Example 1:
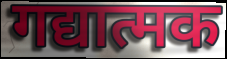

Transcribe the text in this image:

गद्यात्मक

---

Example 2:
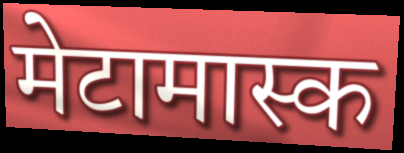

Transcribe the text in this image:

मेटामास्क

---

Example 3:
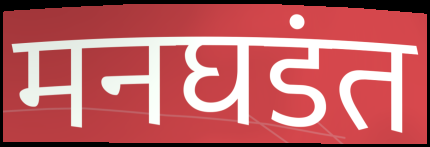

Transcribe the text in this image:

मनघडंत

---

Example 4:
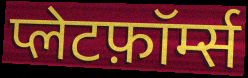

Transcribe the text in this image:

प्लेटफ़ॉर्म्स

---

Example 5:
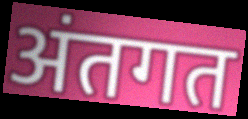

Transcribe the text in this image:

अंतगत